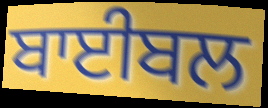
ਬਾਈਬਲ